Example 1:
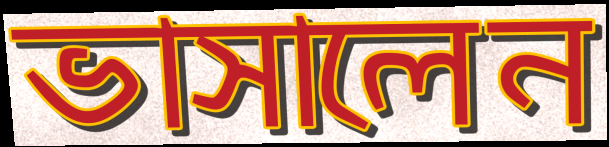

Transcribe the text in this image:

ভাসালেন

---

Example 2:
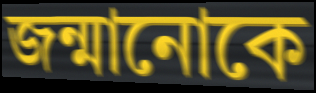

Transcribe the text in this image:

জন্মানোকে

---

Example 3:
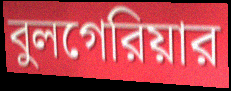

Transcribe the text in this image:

বুলগেরিয়ার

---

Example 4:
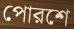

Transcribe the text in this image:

পোরশে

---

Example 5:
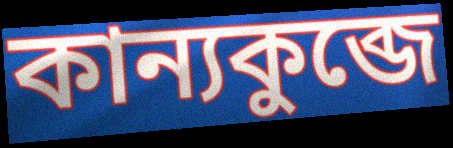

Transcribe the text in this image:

কান্যকুব্জে